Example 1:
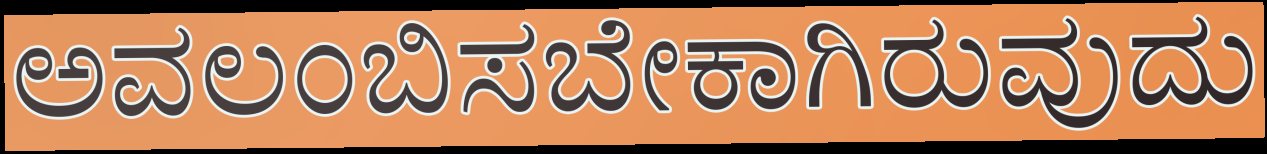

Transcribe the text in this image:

ಅವಲಂಬಿಸಬೇಕಾಗಿರುವುದು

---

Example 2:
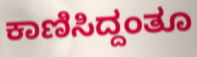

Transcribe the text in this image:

ಕಾಣಿಸಿದ್ದಂತೂ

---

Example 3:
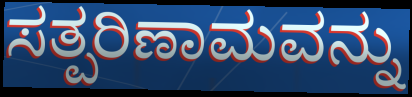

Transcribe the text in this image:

ಸತ್ಪರಿಣಾಮವನ್ನು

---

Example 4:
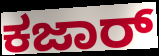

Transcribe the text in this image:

ಕಜಾರ್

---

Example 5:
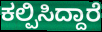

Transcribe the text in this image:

ಕಲ್ಪಿಸಿದ್ದಾರೆ